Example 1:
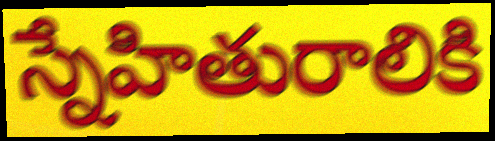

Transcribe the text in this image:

స్నేహితురాలికి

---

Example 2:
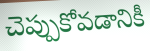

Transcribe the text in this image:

చెప్పుకోవడానికీ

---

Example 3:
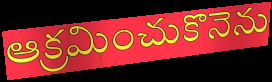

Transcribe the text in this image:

ఆక్రమించుకొనెను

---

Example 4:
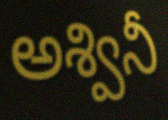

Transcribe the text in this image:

అశ్వినీ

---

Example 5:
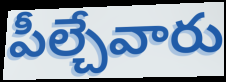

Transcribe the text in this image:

పీల్చేవారు